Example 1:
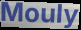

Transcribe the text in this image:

Mouly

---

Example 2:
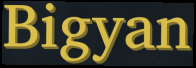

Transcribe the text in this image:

Bigyan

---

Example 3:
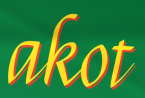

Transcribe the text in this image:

akot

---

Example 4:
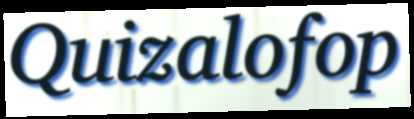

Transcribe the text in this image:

Quizalofop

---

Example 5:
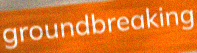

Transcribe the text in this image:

groundbreaking